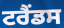
ਟਰੈਂਡਸ